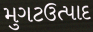
મુગટઉત્પાદ